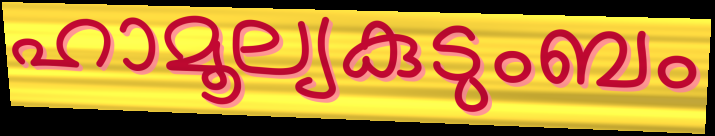
ഹാമൂല്യകുടുംബം